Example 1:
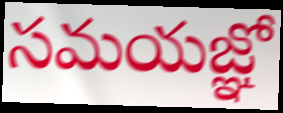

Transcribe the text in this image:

సమయజ్ఞో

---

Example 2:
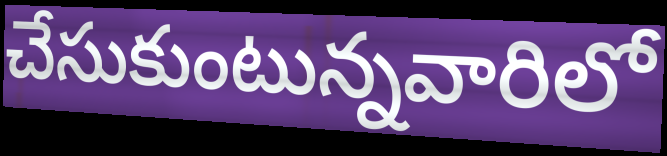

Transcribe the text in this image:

చేసుకుంటున్నవారిలో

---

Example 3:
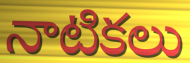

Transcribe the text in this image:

నాటికలు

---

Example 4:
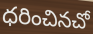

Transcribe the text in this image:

ధరించినచో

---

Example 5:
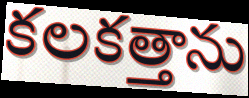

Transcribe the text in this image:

కలకత్తాను